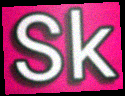
Sk